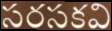
సరసకవి